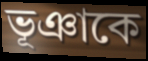
ভূঞাকে